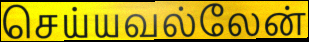
செய்யவல்லேன்